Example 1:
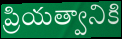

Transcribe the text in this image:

ప్రియత్వానికి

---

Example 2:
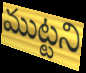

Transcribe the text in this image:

ముట్టని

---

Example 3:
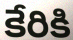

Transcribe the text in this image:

కేరికి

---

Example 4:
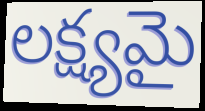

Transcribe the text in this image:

లక్ష్యమై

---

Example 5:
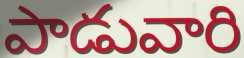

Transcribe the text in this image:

పాడువారి